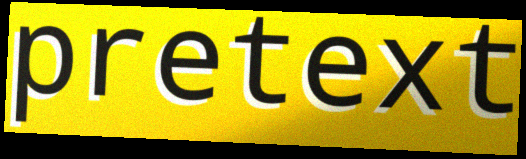
pretext